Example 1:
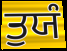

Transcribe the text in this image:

ਤੁਯੰ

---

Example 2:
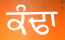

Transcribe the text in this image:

ਕੰਢਾ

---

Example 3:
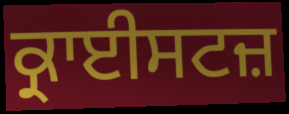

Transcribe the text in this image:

ਕ੍ਰਾਈਸਟਜ਼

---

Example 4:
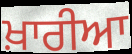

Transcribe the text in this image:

ਖ਼ਾਰੀਆ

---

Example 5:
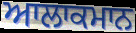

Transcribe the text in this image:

ਆਲਾਕਮਾਨ